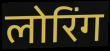
लोरिंग